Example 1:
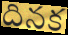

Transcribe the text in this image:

దినక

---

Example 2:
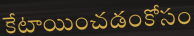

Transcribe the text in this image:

కేటాయించడంకోసం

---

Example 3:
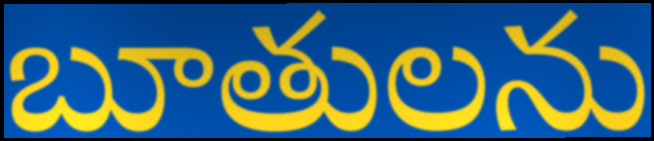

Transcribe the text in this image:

బూతులను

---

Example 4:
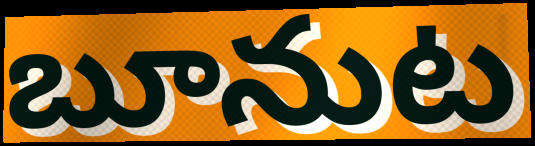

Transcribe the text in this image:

బూనుట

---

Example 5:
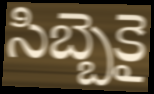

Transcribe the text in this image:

సిబ్బెకై